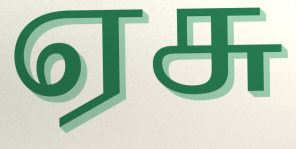
ஏசு